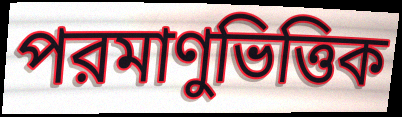
পরমাণুভিত্তিক